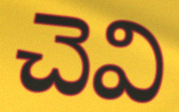
చెవి